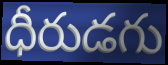
ధీరుడగు